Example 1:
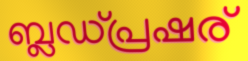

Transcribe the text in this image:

ബ്ലഡ്പ്രഷര്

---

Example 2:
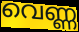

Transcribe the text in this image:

വെണ്ണ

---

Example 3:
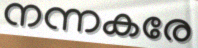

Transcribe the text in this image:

നന്നകരേ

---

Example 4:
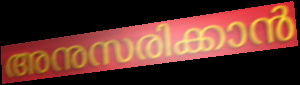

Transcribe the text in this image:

അനുസരിക്കാൻ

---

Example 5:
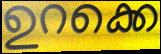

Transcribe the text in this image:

ഉറക്കെ